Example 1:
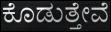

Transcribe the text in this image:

ಕೊಡುತ್ತೇವೆ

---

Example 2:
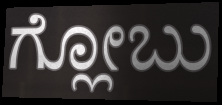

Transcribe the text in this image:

ಗ್ಲೋಬು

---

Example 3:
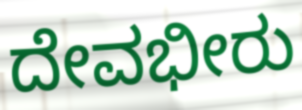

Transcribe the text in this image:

ದೇವಭೀರು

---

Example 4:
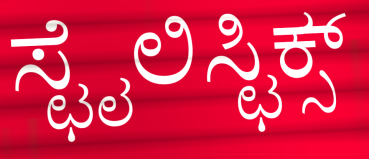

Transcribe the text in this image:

ಸ್ಟೈಲಿಸ್ಟಿಕ್ಸ್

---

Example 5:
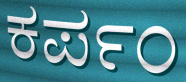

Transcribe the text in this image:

ಕರ್ಪಂ